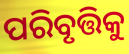
ପରିବୃତ୍ତିକୁ